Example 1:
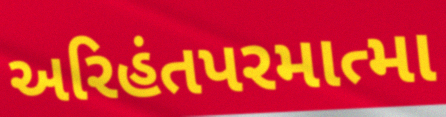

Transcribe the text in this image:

અરિહંતપરમાત્મા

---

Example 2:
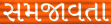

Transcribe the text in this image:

સમજાવતા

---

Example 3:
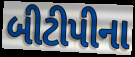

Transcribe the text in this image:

બીટીપીના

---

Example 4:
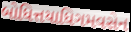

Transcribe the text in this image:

બોધિત્તયાધિગમવસેન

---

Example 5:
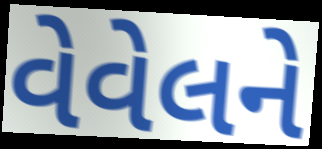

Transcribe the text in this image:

વેવેલને